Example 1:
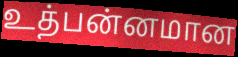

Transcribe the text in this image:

உத்பன்னமான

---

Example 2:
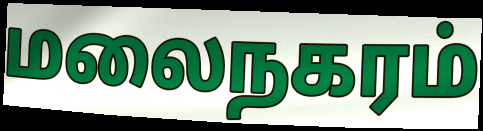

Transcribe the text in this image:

மலைநகரம்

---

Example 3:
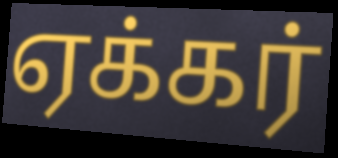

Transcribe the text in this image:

ஏக்கர்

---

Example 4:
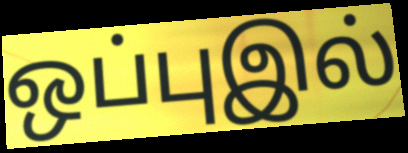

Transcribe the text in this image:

ஒப்புஇல்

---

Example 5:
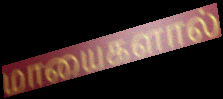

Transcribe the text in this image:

மாயைகளால்